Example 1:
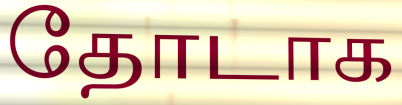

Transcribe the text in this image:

தோடாக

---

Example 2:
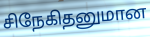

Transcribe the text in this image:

சிநேகிதனுமான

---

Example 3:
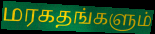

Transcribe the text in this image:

மரகதங்களும்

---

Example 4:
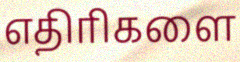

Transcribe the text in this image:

எதிரிகளை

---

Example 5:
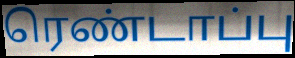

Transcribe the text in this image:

ரெண்டாப்பு